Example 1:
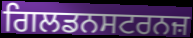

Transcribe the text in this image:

ਗਿਲਡਨਸਟਰਨਜ਼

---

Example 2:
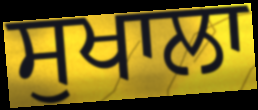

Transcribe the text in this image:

ਸੁਖਾਲਾ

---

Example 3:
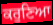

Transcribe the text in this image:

ਕਰੁਣਿਆ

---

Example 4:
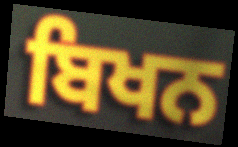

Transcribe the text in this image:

ਬਿਖਨ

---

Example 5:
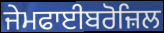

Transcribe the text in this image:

ਜੇਮਫਾਈਬਰੋਜ਼ਿਲ